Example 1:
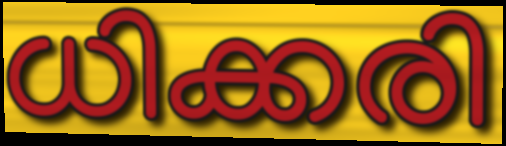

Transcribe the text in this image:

ധിക്കരി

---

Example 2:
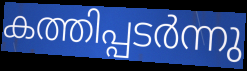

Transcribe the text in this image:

കത്തിപ്പടർന്നു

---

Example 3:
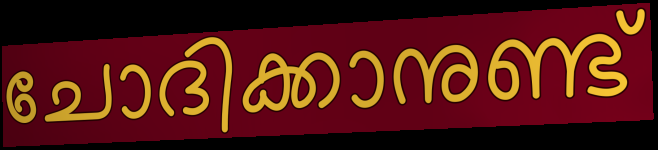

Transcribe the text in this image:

ചോദിക്കാനുണ്ട്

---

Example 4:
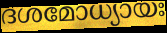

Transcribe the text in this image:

ദശമോധ്യായഃ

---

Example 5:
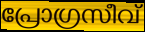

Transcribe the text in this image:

പ്രോഗ്രസീവ്